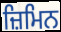
ਜ਼ਿਮਿਨ